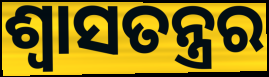
ଶ୍ଵାସତନ୍ତ୍ରର